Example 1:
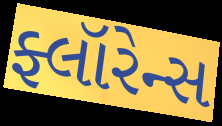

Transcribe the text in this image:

ફ્લૉરેન્સ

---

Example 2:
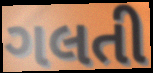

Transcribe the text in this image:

ગલતી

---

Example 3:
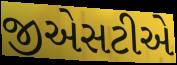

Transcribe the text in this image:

જીએસટીએ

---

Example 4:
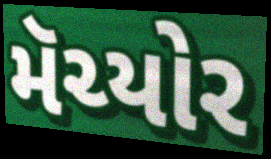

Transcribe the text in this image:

મૅચ્યોર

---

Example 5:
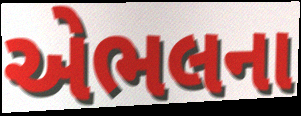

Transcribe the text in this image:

એભલના